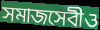
সমাজসেবীও